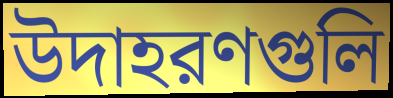
উদাহরণগুলি